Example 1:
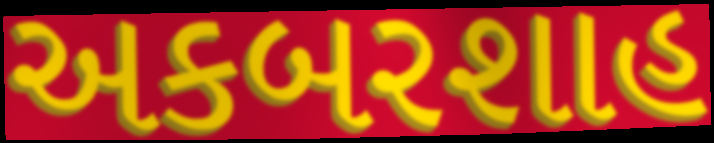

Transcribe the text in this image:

અકબરશાહ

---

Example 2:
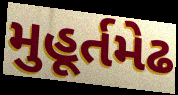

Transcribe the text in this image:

મુહૂર્તમેઢ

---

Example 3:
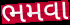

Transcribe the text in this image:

ભમવા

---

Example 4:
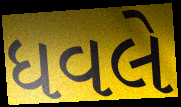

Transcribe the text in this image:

ધવલે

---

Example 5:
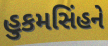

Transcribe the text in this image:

હુકમસિંહને